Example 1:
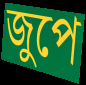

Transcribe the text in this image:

জুপে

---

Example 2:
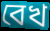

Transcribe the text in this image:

বেখ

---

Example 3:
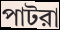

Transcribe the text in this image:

পাটরা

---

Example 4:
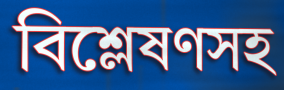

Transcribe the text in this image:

বিশ্লেষণসহ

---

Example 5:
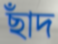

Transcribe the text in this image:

ছাঁদ